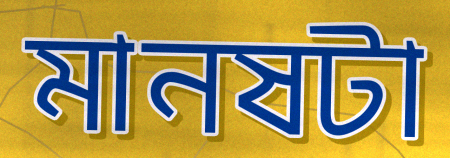
মানষটা